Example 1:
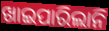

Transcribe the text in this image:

ଖାଇପାରିଲାନି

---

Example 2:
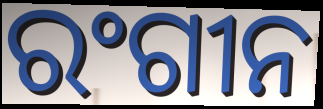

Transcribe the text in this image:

ରଂଗୀନ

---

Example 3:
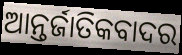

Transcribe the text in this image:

ଆନ୍ତର୍ଜାତିକବାଦର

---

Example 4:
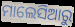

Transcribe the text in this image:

ମାଲେସିଆରୁ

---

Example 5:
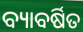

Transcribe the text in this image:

ବ୍ୟାବର୍ଷିତ